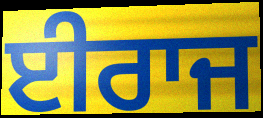
ਈਰਾਜ